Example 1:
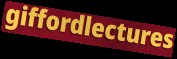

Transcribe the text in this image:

giffordlectures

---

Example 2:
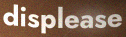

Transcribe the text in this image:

displease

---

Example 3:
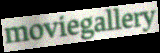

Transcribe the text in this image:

moviegallery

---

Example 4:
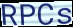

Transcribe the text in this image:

RPCs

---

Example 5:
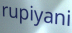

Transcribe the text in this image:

rupiyani